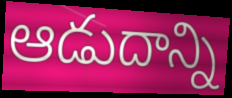
ఆడుదాన్ని